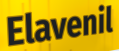
Elavenil